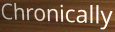
Chronically